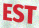
EST